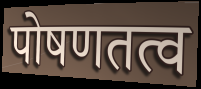
पोषणतत्व